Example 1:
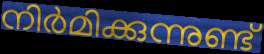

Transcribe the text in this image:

നിർമിക്കുന്നുണ്ട്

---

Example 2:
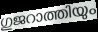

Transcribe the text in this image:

ഗുജറാത്തിയും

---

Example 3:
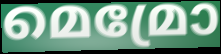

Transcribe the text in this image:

മെമ്രോ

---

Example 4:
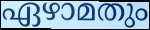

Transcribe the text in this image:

ഏഴാമതും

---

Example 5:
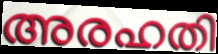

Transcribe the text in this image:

അരഹതി